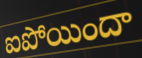
ఐపోయిందా